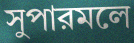
সুপারমলে